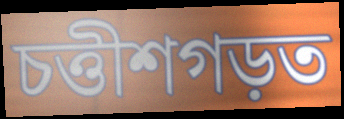
চত্তীশগড়ত